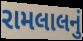
રામલાલનું